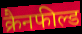
क्रैनफील्ड